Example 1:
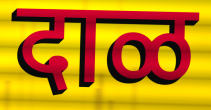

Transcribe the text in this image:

दाळ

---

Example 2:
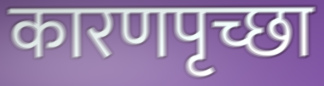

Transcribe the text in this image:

कारणपृच्छा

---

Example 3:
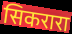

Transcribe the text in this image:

सिकरारा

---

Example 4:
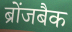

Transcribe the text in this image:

ब्रोंजबैक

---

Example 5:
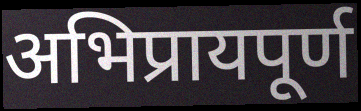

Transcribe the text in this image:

अभिप्रायपूर्ण